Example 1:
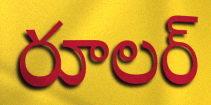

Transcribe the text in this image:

రూలర్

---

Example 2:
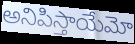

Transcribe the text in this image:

అనిపిస్తాయేమో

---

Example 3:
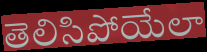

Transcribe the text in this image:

తెలిసిపోయేలా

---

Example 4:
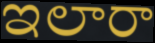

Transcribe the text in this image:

ఇలారా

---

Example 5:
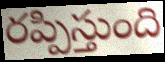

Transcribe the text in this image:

రప్పిస్తుంది